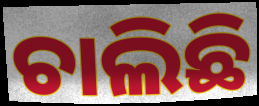
ଚାଲିଛି